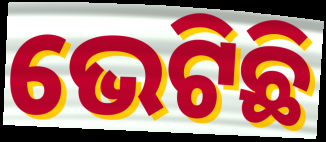
ଭେଟିଛି